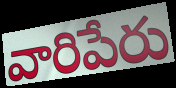
వారిపేరు